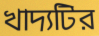
খাদ্যটির